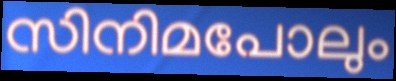
സിനിമപോലും